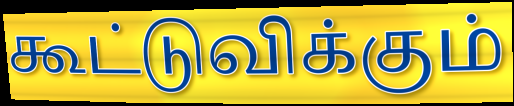
கூட்டுவிக்கும்